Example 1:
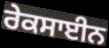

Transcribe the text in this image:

ਰੇਕਸਾਈਨ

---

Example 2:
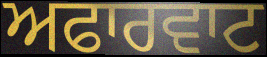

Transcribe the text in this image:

ਅਫਾਰਵਾਟ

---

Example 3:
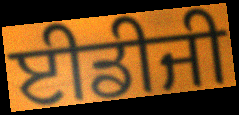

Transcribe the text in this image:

ਈਡੀਜੀ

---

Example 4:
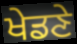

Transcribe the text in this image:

ਖੇਡਣੇ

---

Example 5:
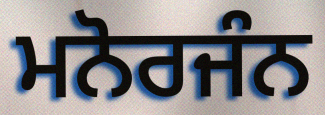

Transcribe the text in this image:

ਮਨੋਰਜੰਨ